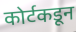
कोर्टकडून